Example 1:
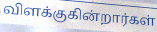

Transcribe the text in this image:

விளக்குகின்றார்கள்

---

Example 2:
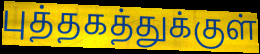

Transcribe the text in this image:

புத்தகத்துக்குள்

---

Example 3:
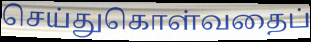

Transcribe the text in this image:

செய்துகொள்வதைப்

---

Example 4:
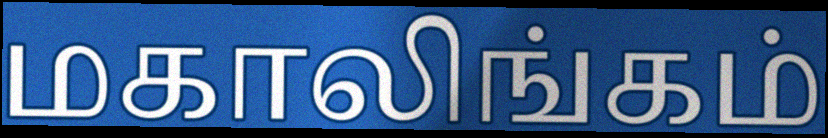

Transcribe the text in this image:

மகாலிங்கம்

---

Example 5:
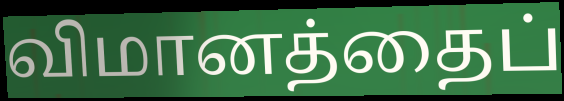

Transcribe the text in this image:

விமானத்தைப்